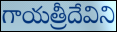
గాయత్రీదేవిని